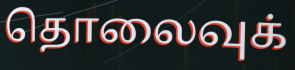
தொலைவுக்